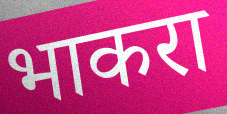
भाकरा